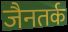
जैनतर्क